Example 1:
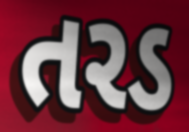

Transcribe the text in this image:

તરડ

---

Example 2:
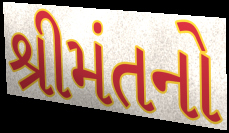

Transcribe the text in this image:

શ્રીમંતનો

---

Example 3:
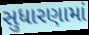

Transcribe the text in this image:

સુધારણામાં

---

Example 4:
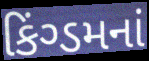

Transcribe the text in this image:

કિંગ્ડમનાં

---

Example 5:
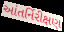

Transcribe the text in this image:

આંતર્નિરીક્ષણ